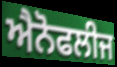
ਐਨੋਫਲੀਜ